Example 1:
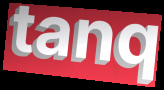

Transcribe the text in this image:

tanq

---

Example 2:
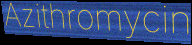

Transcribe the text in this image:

Azithromycin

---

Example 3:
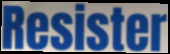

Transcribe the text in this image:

Resister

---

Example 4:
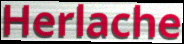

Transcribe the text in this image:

Herlache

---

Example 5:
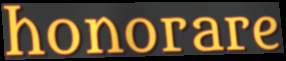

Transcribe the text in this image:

honorare